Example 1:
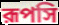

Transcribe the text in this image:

রূপসি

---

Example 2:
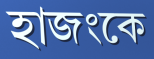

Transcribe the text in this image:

হাজংকে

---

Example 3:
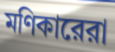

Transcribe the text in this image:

মণিকারেরা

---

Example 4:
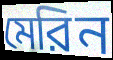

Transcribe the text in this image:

মেরিন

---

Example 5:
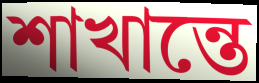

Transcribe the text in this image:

শাখান্তে